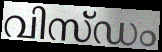
വിസ്ഡം